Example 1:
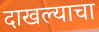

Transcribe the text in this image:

दाखल्याचा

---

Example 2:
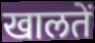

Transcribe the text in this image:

खालतें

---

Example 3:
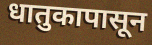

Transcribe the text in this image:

धातुकापासून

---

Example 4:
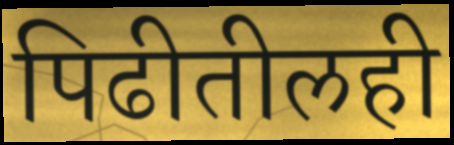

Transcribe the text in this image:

पिढीतीलही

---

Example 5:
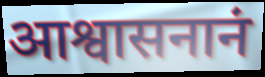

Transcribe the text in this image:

आश्वासनानं